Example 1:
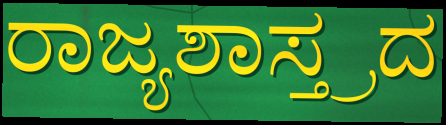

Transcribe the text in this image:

ರಾಜ್ಯಶಾಸ್ತ್ರದ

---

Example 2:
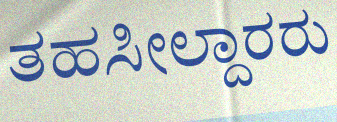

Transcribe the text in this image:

ತಹಸೀಲ್ದಾರರು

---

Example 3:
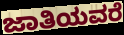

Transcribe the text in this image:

ಜಾತಿಯವರೆ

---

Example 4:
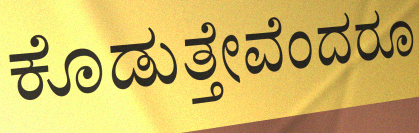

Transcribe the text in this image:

ಕೊಡುತ್ತೇವೆಂದರೂ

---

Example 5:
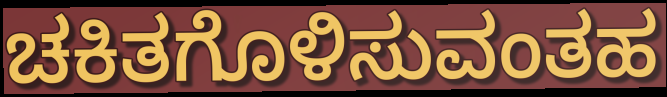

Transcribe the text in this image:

ಚಕಿತಗೊಳಿಸುವಂತಹ